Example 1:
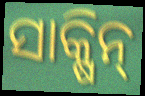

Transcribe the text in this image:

ସାକ୍ଷିନ୍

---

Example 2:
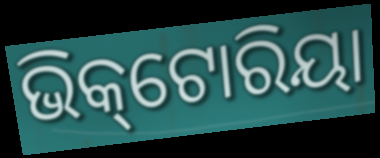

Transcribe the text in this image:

ଭିକ୍‌ଟୋରିୟା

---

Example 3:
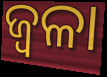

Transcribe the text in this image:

ଜ୍ୱଳା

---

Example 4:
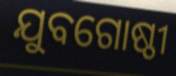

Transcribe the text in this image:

ଯୁବଗୋଷ୍ଠୀ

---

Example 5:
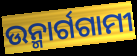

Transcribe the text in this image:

ଉନ୍ମାର୍ଗଗାମୀ